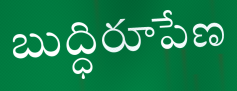
బుద్ధిరూపేణ